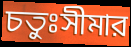
চতুঃসীমার